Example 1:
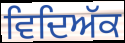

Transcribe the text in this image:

ਵਿਦਿਅੱਕ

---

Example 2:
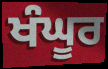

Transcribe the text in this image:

ਖੰਘੂਰ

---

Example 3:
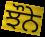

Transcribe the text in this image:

ਝੌਨੇ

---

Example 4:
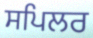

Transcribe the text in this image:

ਸਪਿਲਰ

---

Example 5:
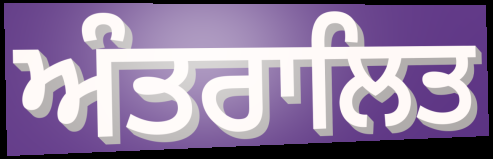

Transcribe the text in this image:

ਅੰਤਰਾਲਿਤ